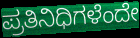
ಪ್ರತಿನಿಧಿಗಳೆಂದೇ